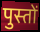
पुस्तों